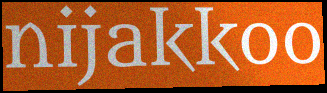
nijakkoo